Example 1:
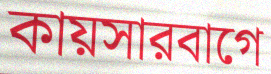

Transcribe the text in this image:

কায়সারবাগে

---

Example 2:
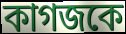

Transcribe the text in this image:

কাগজকে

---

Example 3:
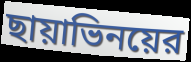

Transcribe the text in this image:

ছায়াভিনয়ের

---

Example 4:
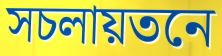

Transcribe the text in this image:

সচলায়তনে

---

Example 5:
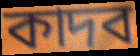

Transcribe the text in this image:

কাদব